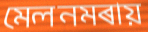
মেলনমৰায়